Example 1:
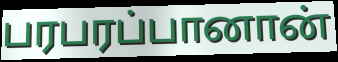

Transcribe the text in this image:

பரபரப்பானான்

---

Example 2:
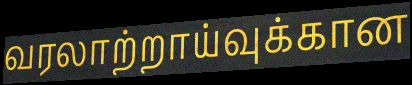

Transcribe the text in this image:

வரலாற்றாய்வுக்கான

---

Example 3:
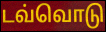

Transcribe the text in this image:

டவ்வொடு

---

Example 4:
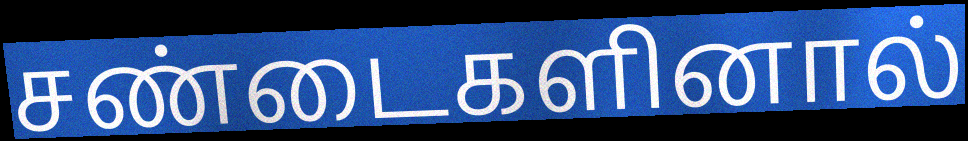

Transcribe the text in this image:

சண்டைகளினால்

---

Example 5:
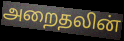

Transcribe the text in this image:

அறைதலின்